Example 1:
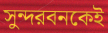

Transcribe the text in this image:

সুন্দরবনকেই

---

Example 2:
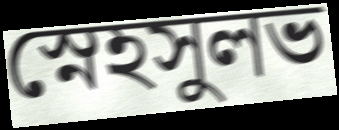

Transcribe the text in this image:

স্নেহসুলভ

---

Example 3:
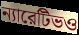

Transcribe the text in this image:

ন্যারেটিভও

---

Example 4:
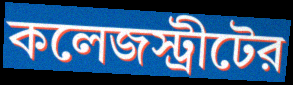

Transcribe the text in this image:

কলেজস্ট্রীটের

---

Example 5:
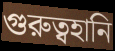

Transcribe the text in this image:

গুরুত্বহানি